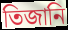
তিজানি